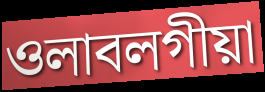
ওলাবলগীয়া